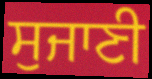
ਸੁਜਾਣੀ